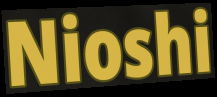
Nioshi